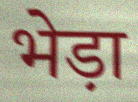
भेड़ा